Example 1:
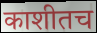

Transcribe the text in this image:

काशीतच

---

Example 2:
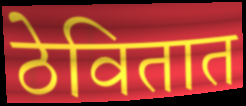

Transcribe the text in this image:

ठेवितात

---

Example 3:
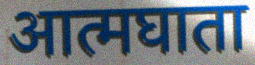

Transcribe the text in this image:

आत्मघाता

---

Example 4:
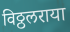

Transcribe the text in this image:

विठ्ठलराया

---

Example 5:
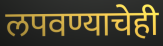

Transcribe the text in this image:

लपवण्याचेही